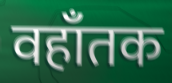
वहाँतक